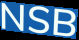
NSB